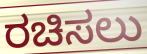
ರಚಿಸಲು